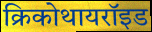
क्रिकोथायरॉइड